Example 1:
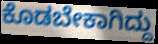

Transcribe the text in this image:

ಕೊಡಬೇಕಾಗಿದ್ದು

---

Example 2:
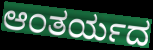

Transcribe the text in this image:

ಆಂತರ್ಯದ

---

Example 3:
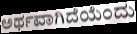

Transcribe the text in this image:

ಅರ್ಥವಾಗಿದೆಯೆಂದು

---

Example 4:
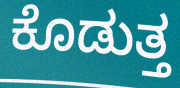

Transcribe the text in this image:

ಕೊಡುತ್ತ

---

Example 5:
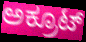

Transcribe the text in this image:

ಅಕ್ರೂಟ್